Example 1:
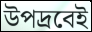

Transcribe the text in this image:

উপদ্রবেই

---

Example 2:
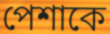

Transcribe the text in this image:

পেশাকে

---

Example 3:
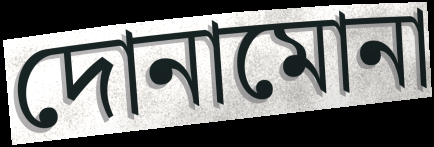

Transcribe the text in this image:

দোনামোনা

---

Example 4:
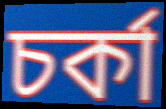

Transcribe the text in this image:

চর্কা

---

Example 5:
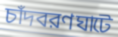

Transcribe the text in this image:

চাঁদবরণঘাটে